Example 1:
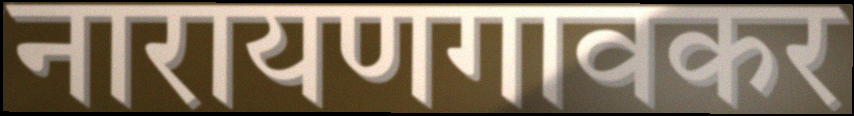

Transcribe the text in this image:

नारायणगावकर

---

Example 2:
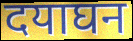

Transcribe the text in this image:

दयाघन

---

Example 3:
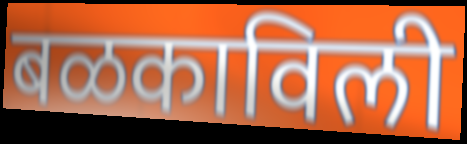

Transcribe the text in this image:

बळकाविली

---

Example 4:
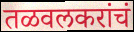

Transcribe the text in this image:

तळवलकरांचं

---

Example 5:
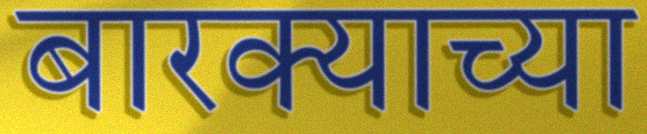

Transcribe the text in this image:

बारक्याच्या